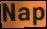
Nap